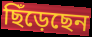
ছিঁড়েছেন